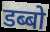
डब्बो